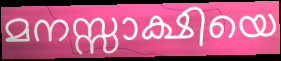
മനസ്സാക്ഷിയെ